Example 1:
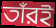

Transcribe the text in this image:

তাঁরই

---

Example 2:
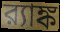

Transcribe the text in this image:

র‍্যাঙ্ক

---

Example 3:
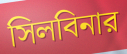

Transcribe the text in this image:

সিলবিনার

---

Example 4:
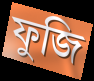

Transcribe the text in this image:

ফুজি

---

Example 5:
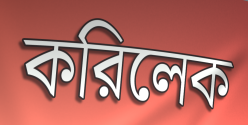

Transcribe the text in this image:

করিলেক